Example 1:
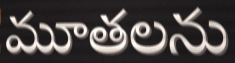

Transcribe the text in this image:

మూతలను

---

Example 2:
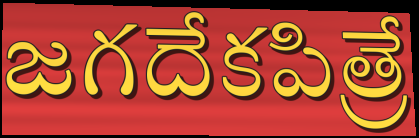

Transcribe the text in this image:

జగదేకపిత్రే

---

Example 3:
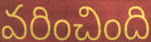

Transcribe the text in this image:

వరించింది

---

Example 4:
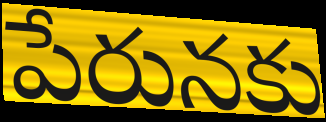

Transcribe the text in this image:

పేరునకు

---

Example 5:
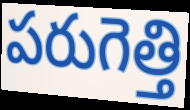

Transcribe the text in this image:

పరుగెత్తి